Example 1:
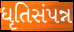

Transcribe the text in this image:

ધૃતિસંપન્ન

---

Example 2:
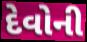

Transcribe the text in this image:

દેવોની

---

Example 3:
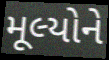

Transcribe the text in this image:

મૂલ્યોને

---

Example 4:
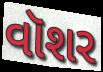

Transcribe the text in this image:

વૉશર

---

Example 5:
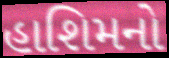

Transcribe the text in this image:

હાશિમનો